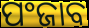
ପଂଜାବ